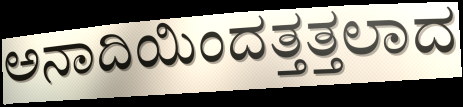
ಅನಾದಿಯಿಂದತ್ತತ್ತಲಾದ